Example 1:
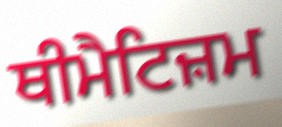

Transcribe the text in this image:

ਥੀਮੈਟਿਜ਼ਮ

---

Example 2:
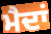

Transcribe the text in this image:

ਮੈਦਾਂ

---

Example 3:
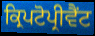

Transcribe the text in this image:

ਕ੍ਰਿਪਟੋਪ੍ਰੀਵੈਂਟ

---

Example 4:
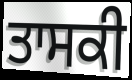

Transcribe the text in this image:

ਤਾਸਕੀ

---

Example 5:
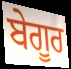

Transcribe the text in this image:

ਬੇਗੂਰ